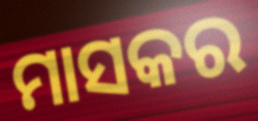
ମାସକର